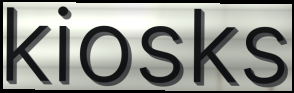
kiosks